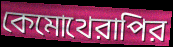
কেমোথেরাপির